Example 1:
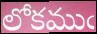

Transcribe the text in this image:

లోకముఁ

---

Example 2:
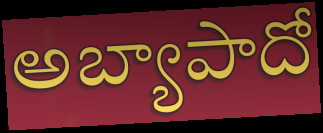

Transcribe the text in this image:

అబ్యాపాదో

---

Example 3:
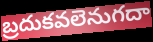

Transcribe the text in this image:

బ్రదుకవలెనుగదా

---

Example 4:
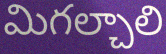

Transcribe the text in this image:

మిగల్చాలి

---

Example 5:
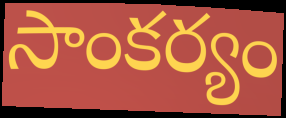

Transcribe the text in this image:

సాంకర్యం